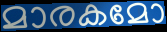
മാരകമോ